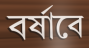
বর্ষাবে